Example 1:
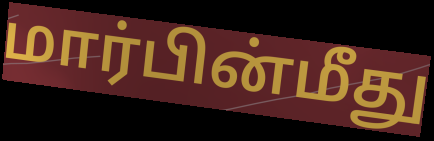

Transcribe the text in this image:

மார்பின்மீது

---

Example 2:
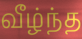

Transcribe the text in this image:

வீழ்ந்த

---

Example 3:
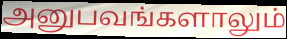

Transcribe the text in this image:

அனுபவங்களாலும்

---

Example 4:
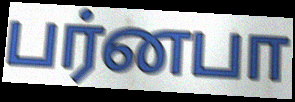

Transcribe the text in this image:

பர்னபா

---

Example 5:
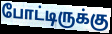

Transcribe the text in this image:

போட்டிருக்கு